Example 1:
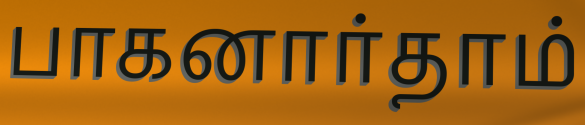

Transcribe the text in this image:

பாகனார்தாம்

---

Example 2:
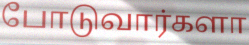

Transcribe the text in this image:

போடுவார்களா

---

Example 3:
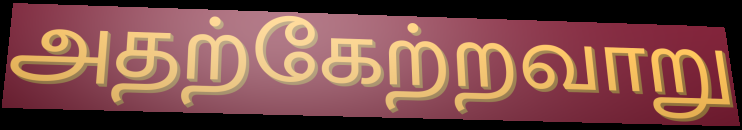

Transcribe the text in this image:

அதற்கேற்றவாறு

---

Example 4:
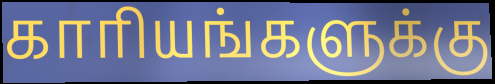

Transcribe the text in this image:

காரியங்களுக்கு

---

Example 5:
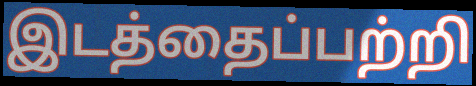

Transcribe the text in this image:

இடத்தைப்பற்றி